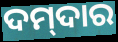
ଦମ୍‌ଦାର